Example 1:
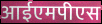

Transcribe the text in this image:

आईएमपीएस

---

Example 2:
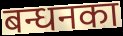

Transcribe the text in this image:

बन्धनका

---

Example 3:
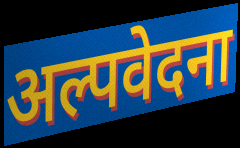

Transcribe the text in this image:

अल्पवेदना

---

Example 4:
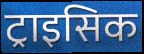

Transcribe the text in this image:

ट्राइसिक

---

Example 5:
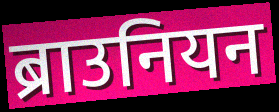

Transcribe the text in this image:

ब्राउनियन